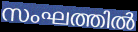
സംഘത്തിൽ